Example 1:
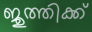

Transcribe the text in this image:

ജുത്തിക്ക്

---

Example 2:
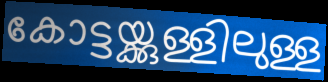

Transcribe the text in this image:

കോട്ടയ്ക്കുള്ളിലുള്ള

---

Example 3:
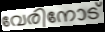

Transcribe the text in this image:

വേരിനോട്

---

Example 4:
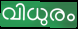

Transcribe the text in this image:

വിധുരം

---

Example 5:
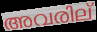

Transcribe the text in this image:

അവരില്